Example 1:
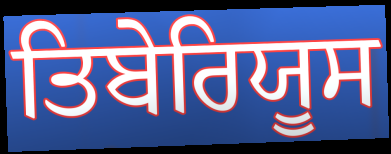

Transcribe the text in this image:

ਤਿਬੇਰਿਯੂਸ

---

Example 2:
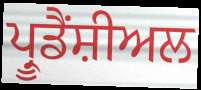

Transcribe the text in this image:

ਪ੍ਰੂਡੈਂਸ਼ੀਅਲ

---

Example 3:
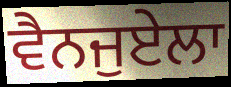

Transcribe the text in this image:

ਵੈਨਜੁਏਲਾ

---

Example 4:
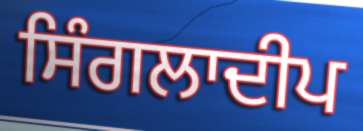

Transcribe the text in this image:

ਸਿੰਗਲਾਦੀਪ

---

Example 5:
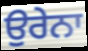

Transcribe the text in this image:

ਉਰੇਨਾ